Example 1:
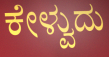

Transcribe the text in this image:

ಕೇಳ್ವುದು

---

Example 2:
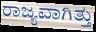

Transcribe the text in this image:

ರಾಜ್ಯವಾಗಿತ್ತು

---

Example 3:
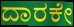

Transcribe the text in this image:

ದಾರಕೇ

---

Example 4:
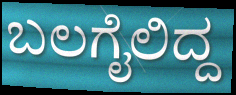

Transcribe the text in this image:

ಬಲಗೈಲಿದ್ದ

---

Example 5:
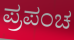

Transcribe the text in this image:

ಪ್ರಪಂಚ